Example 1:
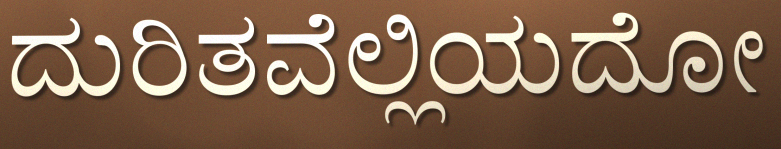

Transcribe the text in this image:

ದುರಿತವೆಲ್ಲಿಯದೋ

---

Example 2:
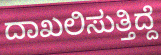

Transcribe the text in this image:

ದಾಖಲಿಸುತ್ತಿದ್ದೆ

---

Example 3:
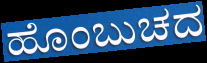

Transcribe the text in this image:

ಹೊಂಬುಚದ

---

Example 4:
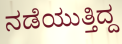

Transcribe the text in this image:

ನಡೆಯುತ್ತಿದ್ದ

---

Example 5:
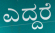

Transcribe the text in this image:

ಎದ್ದರೆ